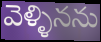
వెళ్ళినను